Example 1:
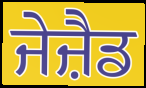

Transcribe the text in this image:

ਜੇਜ਼ੈਡ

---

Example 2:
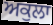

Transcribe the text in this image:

ਅਕੁਲਾ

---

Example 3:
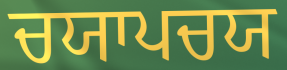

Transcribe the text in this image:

ਚਯਾਪਚਯ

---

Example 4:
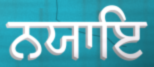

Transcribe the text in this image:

ਨਯਾਇ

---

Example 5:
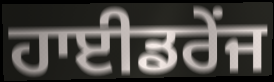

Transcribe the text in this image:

ਹਾਈਡਰੇਂਜ